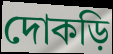
দোকড়ি